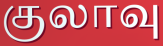
குலாவு